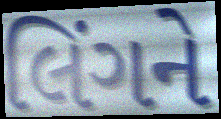
લિંગને